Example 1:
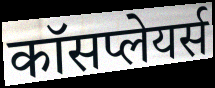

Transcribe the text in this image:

कॉसप्लेयर्स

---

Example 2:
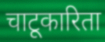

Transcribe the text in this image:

चाटूकारिता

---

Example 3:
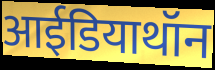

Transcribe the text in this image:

आईडियाथॉन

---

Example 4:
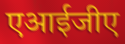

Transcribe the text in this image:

एआईजीए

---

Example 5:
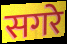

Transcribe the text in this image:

सगरे